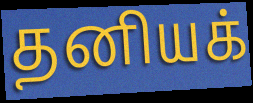
தனியக்